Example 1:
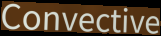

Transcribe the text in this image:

Convective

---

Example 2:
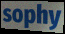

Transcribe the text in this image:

sophy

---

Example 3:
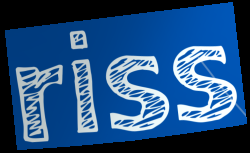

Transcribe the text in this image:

riss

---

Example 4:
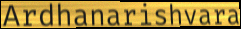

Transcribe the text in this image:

Ardhanarishvara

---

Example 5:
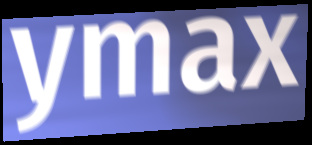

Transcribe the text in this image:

ymax